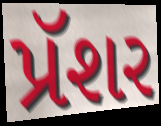
પ્રૅશર